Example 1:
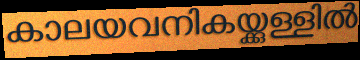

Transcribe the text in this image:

കാലയവനികയ്ക്കുള്ളിൽ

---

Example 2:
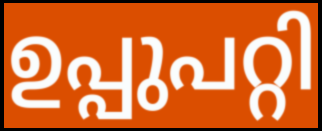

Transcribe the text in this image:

ഉപ്പുപറ്റി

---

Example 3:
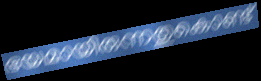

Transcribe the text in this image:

ഭയമായിരുന്നതുകൊണ്ട്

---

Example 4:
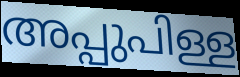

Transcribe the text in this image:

അപ്പുപിള്ള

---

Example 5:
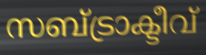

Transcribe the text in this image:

സബ്ട്രാക്ടീവ്